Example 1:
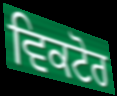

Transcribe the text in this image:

ਵਿਕਟੋਰ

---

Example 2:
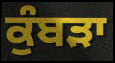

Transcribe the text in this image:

ਕੁੰਬੜਾ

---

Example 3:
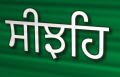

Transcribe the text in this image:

ਸੀਝਹਿ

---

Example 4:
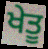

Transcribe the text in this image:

ਖੇਤੂ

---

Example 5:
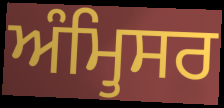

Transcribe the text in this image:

ਅੰਮ੍ਤਿਸਰ